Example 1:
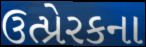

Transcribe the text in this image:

ઉત્પ્રેરકના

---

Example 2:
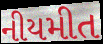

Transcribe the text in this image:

નીયમીત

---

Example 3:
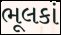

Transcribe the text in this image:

ભૂલકાં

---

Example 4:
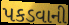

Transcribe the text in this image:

પકડવાની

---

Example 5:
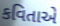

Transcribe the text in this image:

કવિતાએ